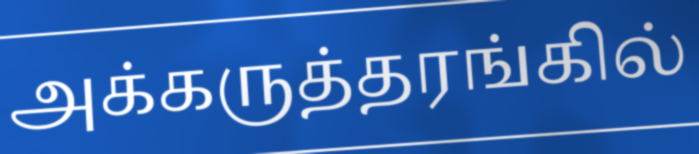
அக்கருத்தரங்கில்